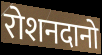
रोशनदानो